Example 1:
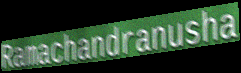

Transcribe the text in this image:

Ramachandranusha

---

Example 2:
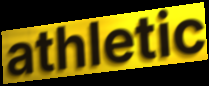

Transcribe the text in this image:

athletic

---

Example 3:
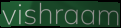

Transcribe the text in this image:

vishraam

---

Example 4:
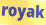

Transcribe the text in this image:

royak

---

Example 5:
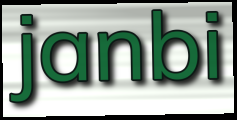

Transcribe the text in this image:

janbi